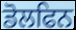
ਡੋਲਫਿਨ